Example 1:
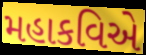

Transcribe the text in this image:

મહાકવિએ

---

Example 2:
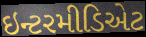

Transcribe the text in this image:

ઇન્ટરમીડિએટ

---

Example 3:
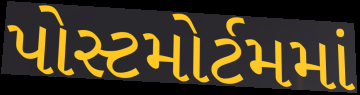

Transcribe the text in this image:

પોસ્ટમોર્ટમમાં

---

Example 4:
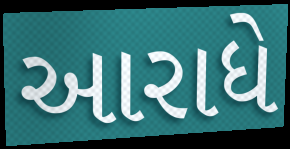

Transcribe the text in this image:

આરાધે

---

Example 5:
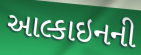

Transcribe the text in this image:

આલ્કાઇનની